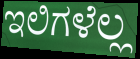
ಇಲಿಗಳೆಲ್ಲ